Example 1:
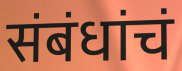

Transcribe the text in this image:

संबंधांचं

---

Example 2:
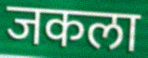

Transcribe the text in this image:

जकला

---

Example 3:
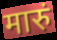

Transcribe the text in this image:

मारुं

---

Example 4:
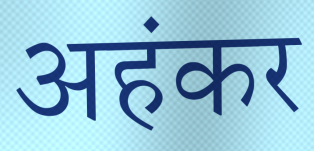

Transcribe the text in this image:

अहंकर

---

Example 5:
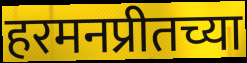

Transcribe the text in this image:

हरमनप्रीतच्या